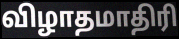
விழாதமாதிரி